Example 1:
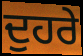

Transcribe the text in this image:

ਦੁਹਰੇ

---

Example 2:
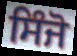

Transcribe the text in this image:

ਸਿੰਜੋ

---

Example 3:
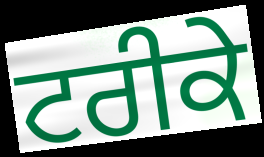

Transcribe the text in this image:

ਟਰੀਕੇ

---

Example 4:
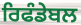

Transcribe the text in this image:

ਰਿਫੰਡੇਬਲ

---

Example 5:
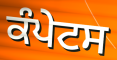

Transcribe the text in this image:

ਕੰਪੇਟਸ